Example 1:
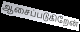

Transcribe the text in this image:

ஆசைப்படுகிறேன்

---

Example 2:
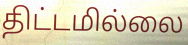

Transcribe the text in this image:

திட்டமில்லை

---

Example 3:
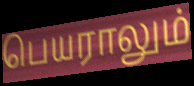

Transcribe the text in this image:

பெயராலும்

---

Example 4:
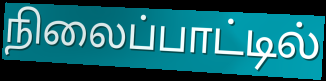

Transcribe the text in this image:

நிலைப்பாட்டில்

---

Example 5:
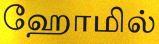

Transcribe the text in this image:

ஹோமில்